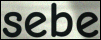
sebe